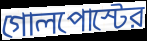
গোলপোস্টের